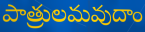
పాత్రులమవుదాం